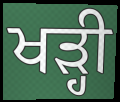
ਖੜ੍ਹੀ